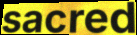
sacred